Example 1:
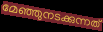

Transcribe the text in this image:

മേഞ്ഞുനടക്കുന്നത്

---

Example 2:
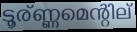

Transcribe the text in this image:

ടൂര്ണ്ണമെന്റില്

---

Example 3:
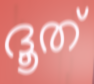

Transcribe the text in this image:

ദൂത്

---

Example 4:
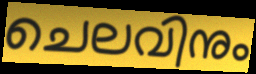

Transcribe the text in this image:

ചെലവിനും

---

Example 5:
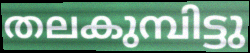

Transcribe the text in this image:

തലകുമ്പിട്ടു